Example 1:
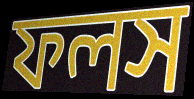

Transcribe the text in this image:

ফলস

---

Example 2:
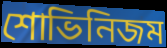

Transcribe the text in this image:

শোভিনিজম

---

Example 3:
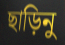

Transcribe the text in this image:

ছাড়িনু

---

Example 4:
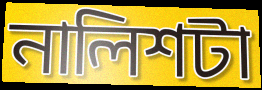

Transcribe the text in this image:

নালিশটা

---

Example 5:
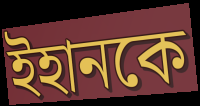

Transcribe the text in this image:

ইহানকে